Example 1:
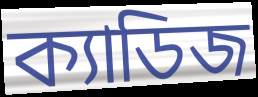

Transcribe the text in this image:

ক্যাডিজ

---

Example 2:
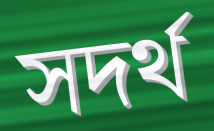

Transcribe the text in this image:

সদর্থ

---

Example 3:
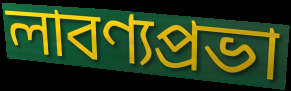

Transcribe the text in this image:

লাবণ্যপ্রভা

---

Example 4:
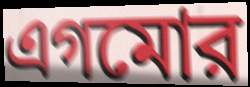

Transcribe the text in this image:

এগমোর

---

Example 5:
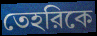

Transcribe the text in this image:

তেহরিকে